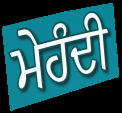
ਮੇਹੰਦੀ